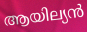
ആയില്യൻ